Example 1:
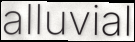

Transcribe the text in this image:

alluvial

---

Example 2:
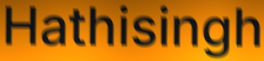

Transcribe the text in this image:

Hathisingh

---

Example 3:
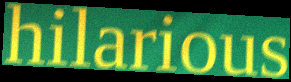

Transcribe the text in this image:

hilarious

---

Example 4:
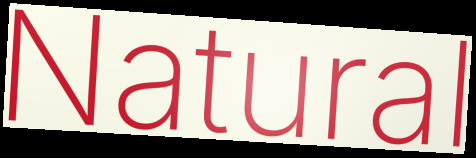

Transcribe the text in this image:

Natural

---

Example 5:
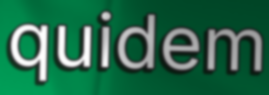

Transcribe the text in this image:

quidem